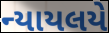
ન્યાયલયે